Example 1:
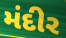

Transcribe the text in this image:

મંદીર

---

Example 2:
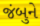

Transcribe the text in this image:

જંબુને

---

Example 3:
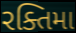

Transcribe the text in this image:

રક્તિમા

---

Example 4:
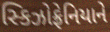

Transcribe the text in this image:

સ્કિઝોફ્રેનિયાને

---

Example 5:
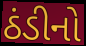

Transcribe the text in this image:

ઠંડીનો